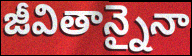
జీవితాన్నైనా